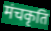
मंचकृति